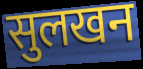
सुलखन